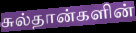
சுல்தான்களின்